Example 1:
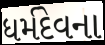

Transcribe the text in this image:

ધર્મદેવના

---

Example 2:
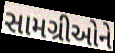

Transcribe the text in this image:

સામગ્રીઓને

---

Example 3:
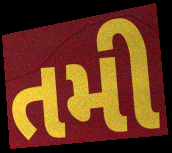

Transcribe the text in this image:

તમી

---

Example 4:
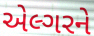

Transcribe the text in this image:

એલ્ગરને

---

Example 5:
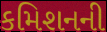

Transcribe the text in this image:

કમિશનની